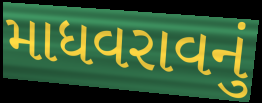
માધવરાવનું